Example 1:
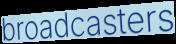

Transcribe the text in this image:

broadcasters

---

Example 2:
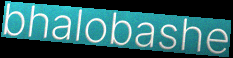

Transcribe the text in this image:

bhalobashe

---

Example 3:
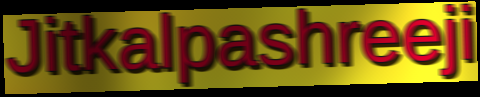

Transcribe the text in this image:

Jitkalpashreeji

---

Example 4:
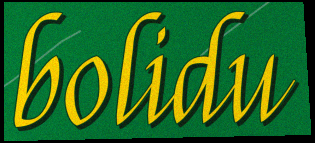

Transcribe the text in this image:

bolidu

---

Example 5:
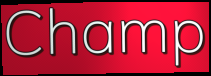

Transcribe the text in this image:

Champ